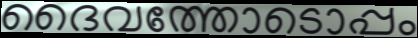
ദൈവത്തോടൊപ്പം